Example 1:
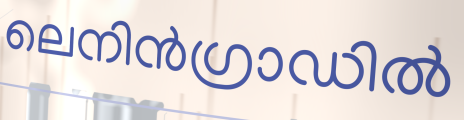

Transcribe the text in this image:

ലെനിൻഗ്രാഡിൽ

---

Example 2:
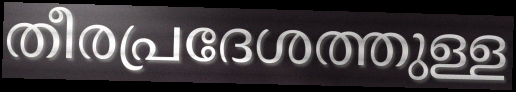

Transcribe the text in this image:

തീരപ്രദേശത്തുള്ള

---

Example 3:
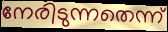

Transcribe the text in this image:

നേരിടുന്നതെന്ന്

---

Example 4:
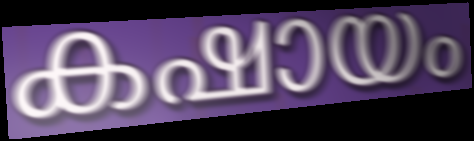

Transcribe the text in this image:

കഷായം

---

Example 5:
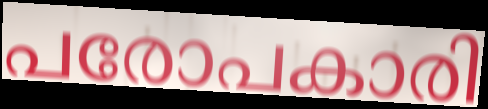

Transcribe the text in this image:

പരോപകാരി